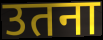
उतना